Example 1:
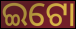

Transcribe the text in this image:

ଇଟୋ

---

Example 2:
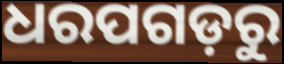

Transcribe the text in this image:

ଧରପଗଡ଼ରୁ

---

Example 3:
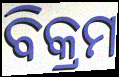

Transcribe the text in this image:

ବିକ୍ରମ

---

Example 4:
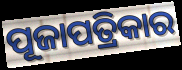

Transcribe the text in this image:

ପୂଜାପତ୍ରିକାର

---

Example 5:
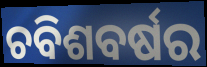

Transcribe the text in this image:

ଚବିଶବର୍ଷର